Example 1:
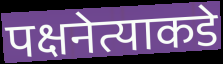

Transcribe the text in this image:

पक्षनेत्याकडे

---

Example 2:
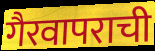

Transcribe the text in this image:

गैरवापराची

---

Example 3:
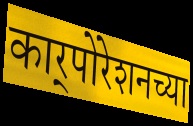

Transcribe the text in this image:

कार्पोरेशनच्या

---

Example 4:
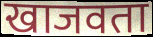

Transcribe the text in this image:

खाजवता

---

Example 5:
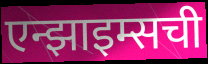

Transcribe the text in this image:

एन्झाइम्सची